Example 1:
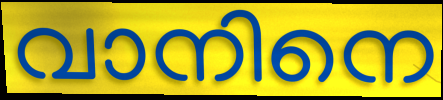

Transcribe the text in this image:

വാനിനെ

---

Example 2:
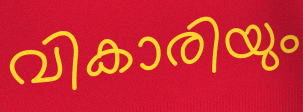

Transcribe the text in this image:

വികാരിയും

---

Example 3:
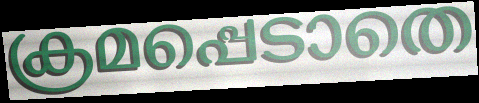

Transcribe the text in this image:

ക്രമപ്പെടാതെ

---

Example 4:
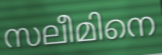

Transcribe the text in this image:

സലീമിനെ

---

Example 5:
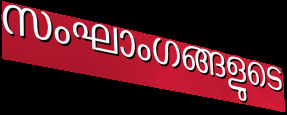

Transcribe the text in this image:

സംഘാംഗങ്ങളുടെ